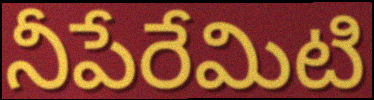
నీపేరేమిటి